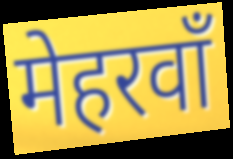
मेहरवाँ